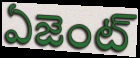
ఏజెంట్